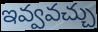
ఇవ్వవచ్చు